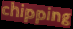
chipping